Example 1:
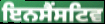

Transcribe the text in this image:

ਇਨਸੈਂਸਟਿਵ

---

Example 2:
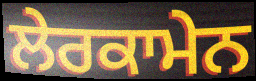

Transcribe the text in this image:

ਲੇਰਕਾਮੇਨ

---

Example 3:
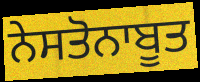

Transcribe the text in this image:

ਨੇਸਤੋਨਾਬੂਤ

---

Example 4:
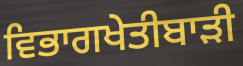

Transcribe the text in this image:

ਵਿਭਾਗਖੇਤੀਬਾੜੀ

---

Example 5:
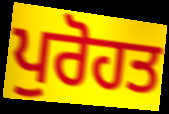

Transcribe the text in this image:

ਪੁਰੋਹਤ